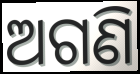
ଅଗଣି